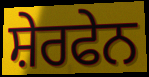
ਸ਼ੇਰਫੇਨ